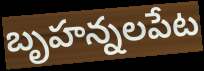
బృహన్నలపేట